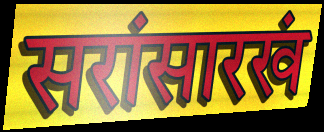
सरांसारखं